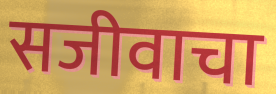
सजीवाचा